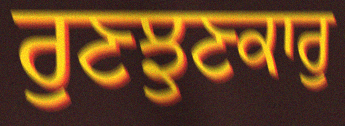
ਰੁਣਝੁਣਕਾਰੁ